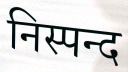
निस्पन्द